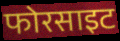
फोरसाइट